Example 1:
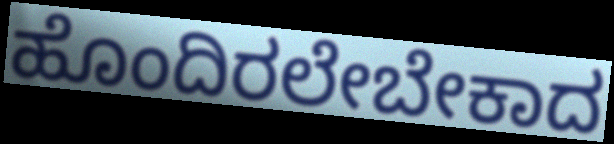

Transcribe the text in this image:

ಹೊಂದಿರಲೇಬೇಕಾದ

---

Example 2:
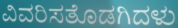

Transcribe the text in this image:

ವಿವರಿಸತೊಡಗಿದಳು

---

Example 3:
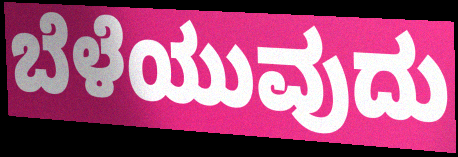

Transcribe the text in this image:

ಬೆಳೆಯುವುದು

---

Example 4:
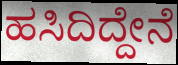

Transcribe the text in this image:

ಹಸಿದಿದ್ದೇನೆ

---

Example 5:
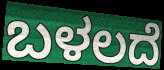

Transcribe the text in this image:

ಬಳಲದೆ